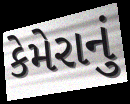
કેમેરાનું